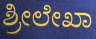
ಶ್ರೀಲೇಖಾ